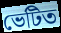
ভেটিত